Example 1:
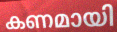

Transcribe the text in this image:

കണമായി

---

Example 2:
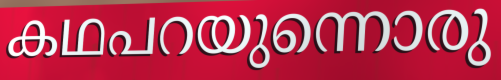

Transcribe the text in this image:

കഥപറയുന്നൊരു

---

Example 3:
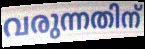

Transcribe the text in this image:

വരുന്നതിന്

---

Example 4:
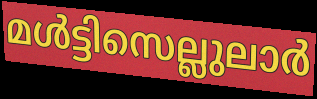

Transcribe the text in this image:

മൾട്ടിസെല്ലുലാർ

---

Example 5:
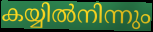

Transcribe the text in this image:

കയ്യിൽനിന്നും